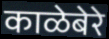
काळेबेरे